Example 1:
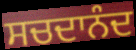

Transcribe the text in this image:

ਸਚਦਾਨੰਦ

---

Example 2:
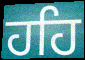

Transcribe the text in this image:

ਹਹਿ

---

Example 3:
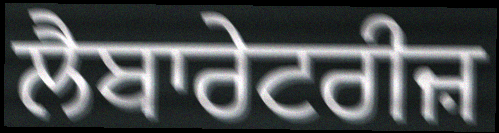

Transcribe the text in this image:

ਲੈਬਾਰੇਟਰੀਜ਼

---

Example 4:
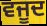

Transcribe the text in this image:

ਵਜੂਦ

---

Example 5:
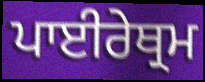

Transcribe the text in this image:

ਪਾਈਰੇਥ੍ਰਮ